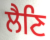
ਲੈਣਿ